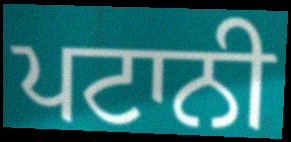
ਪਟਾਨੀ